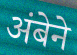
अंबेने